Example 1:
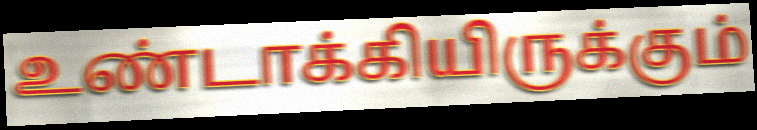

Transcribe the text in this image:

உண்டாக்கியிருக்கும்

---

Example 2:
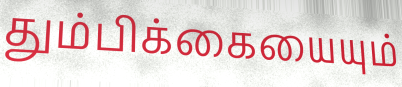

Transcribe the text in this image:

தும்பிக்கையையும்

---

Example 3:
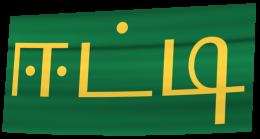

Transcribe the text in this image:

ஈட்டி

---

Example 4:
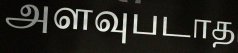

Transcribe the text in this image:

அளவுபடாத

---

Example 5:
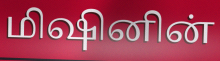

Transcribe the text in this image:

மிஷினின்